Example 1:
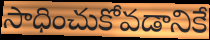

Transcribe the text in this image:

సాధించుకోవడానికే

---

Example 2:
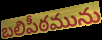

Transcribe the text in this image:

బలిపీఠమును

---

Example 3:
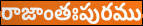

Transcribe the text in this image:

రాజాంతఃపురము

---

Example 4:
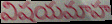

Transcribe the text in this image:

విషయమాహ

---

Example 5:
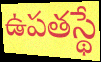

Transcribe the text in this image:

ఉపతస్థే